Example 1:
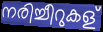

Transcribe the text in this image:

നരിച്ചീറുകള്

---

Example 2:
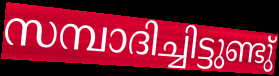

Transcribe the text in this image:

സമ്പാദിച്ചിട്ടുണ്ടു്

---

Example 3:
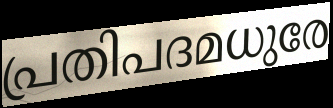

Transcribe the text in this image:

പ്രതിപദമധുരേ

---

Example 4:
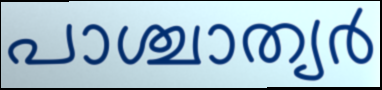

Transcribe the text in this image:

പാശ്ചാത്യർ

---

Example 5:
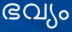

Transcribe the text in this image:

ഭവ്യം